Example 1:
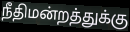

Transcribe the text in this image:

நீதிமன்றத்துக்கு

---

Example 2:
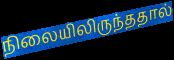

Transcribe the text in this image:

நிலையிலிருந்ததால்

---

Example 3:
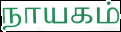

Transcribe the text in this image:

நாயகம்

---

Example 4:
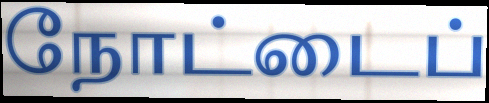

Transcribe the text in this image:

நோட்டைப்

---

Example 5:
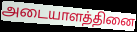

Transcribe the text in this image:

அடையாளத்தினை